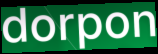
dorpon